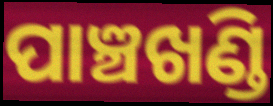
ପାଞ୍ଚଖଣ୍ଡି